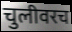
चुलीवरच